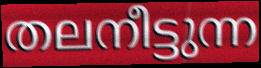
തലനീട്ടുന്ന